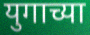
युगाच्या